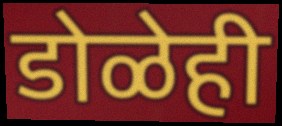
डोळेही